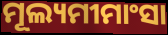
ମୂଲ୍ୟମୀମାଂସା